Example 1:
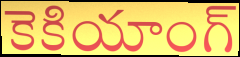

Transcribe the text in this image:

కెకియాంగ్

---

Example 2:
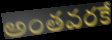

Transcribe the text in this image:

అంతవరకే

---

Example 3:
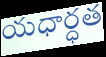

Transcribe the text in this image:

యధార్ధత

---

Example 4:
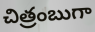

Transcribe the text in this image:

చిత్రంబుగా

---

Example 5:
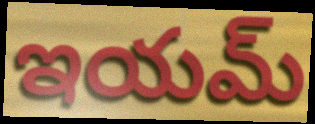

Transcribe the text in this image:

ఇయమ్